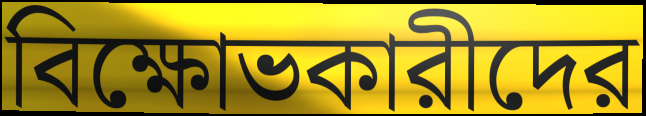
বিক্ষোভকারীদের